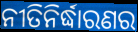
ନୀତିନିର୍ଦ୍ଧାରଣର